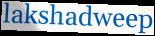
lakshadweep